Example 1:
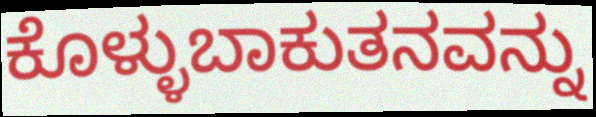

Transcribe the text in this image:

ಕೊಳ್ಳುಬಾಕುತನವನ್ನು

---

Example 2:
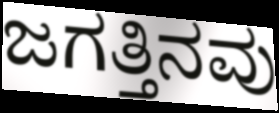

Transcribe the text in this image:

ಜಗತ್ತಿನವು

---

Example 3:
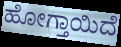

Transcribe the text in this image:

ಹೋಗ್ತಾಯಿದೆ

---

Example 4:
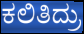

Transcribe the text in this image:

ಕಲಿತಿದ್ರು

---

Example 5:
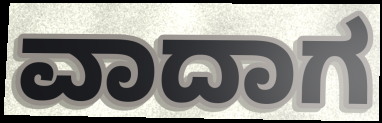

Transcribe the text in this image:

ವಾದಾಗ